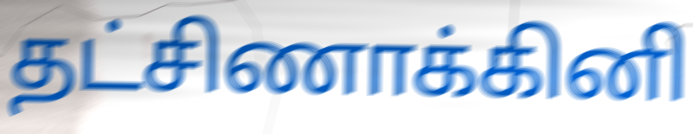
தட்சிணாக்கினி